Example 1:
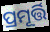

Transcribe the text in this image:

ପ୍ରମୂର୍ତ୍ତି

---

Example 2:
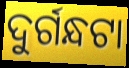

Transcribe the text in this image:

ଦୁର୍ଗନ୍ଧଟା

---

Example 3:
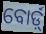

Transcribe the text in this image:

ବୋର୍ଡ଼୍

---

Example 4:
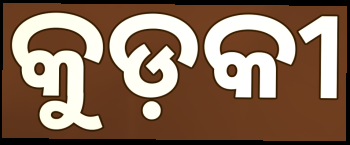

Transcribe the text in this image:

କୁଡ଼କୀ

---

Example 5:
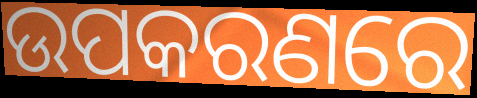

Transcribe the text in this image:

ଉପକରଣରେ